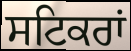
ਸਟਿਕਰਾਂ